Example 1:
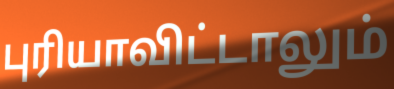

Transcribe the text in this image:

புரியாவிட்டாலும்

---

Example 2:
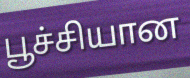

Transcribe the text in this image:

பூச்சியான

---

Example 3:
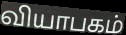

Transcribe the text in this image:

வியாபகம்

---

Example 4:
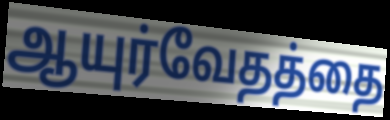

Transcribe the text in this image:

ஆயுர்வேதத்தை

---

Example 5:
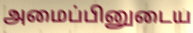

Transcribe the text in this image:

அமைப்பினுடைய